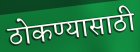
ठोकण्यासाठी